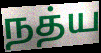
நத்ய